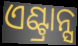
ଏଣ୍ଟ୍ରାନ୍ସ